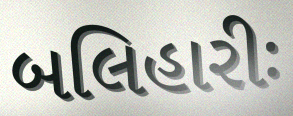
બલિહારીઃ